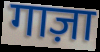
गाज़ा